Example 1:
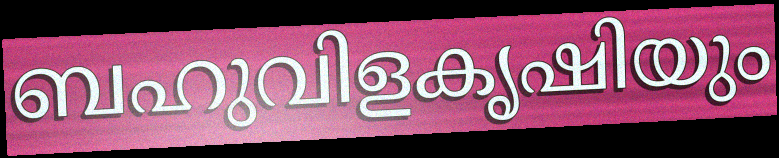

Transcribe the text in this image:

ബഹുവിളകൃഷിയും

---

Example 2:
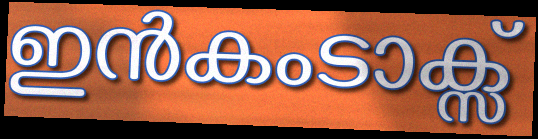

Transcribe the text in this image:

ഇൻകംടാക്സ്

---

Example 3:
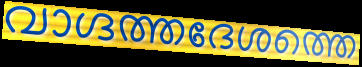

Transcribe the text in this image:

വാഗ്ദത്തദേശത്തെ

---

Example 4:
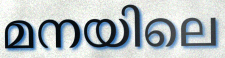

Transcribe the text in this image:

മനയിലെ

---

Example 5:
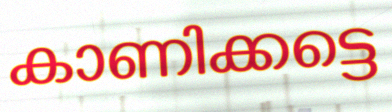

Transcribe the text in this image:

കാണിക്കട്ടെ